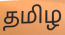
தமிழ